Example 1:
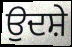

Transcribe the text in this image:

ਉਦਸ਼ੇ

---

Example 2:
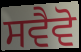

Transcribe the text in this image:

ਸਵੈਵੋ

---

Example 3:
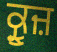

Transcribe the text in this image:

ਕ੍ਰੂਜ਼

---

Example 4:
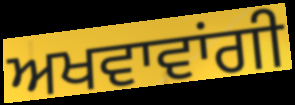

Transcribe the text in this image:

ਅਖਵਾਵਾਂਗੀ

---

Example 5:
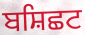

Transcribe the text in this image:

ਬਸ਼ਿਛਟ